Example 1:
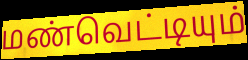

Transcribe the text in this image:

மண்வெட்டியும்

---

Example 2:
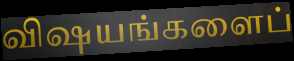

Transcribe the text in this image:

விஷயங்களைப்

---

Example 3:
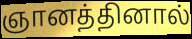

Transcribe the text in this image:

ஞானத்தினால்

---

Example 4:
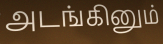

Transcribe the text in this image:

அடங்கினும்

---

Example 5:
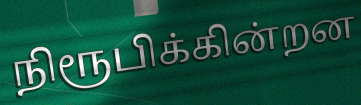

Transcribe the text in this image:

நிரூபிக்கின்றன